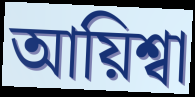
আয়িশ্বা